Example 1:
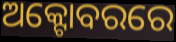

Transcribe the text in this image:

ଅକ୍ଟୋବରରେ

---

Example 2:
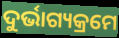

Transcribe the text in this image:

ଦୁର୍ଭାଗ୍ୟକ୍ରମେ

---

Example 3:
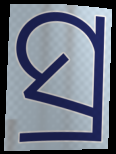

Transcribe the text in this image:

ସ୍ର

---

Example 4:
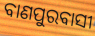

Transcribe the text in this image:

ବାଣପୁରବାସୀ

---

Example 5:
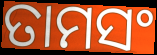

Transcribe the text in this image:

ତାମସଂ